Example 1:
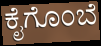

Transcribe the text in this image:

ಕೈಗೊಂಬೆ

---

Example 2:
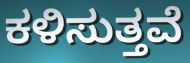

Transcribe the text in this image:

ಕಳಿಸುತ್ತವೆ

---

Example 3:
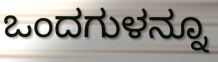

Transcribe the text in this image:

ಒಂದಗುಳನ್ನೂ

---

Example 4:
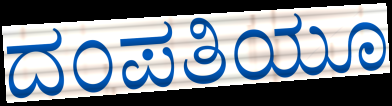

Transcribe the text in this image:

ದಂಪತಿಯೂ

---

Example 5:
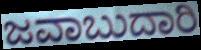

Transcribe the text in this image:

ಜವಾಬುದಾರಿ